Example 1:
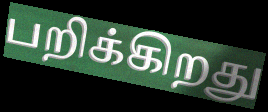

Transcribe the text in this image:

பறிக்கிறது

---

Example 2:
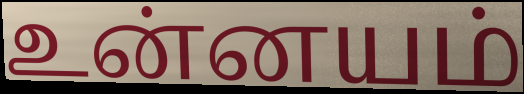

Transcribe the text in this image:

உன்னயம்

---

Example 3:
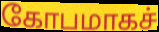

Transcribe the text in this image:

கோபமாகச்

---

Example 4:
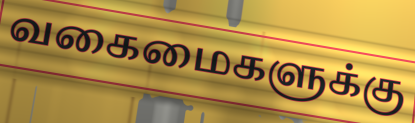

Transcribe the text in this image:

வகைமைகளுக்கு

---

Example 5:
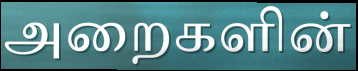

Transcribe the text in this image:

அறைகளின்